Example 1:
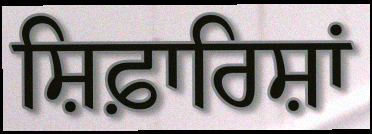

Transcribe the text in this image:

ਸ਼ਿਫ਼ਾਰਿਸ਼ਾਂ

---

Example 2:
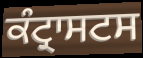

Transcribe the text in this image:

ਕੰਟ੍ਰਾਸਟਸ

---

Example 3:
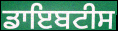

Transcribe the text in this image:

ਡਾਇਬਟੀਸ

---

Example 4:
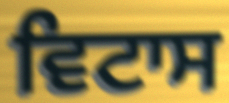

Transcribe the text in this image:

ਵਿਟਾਸ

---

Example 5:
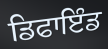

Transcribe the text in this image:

ਡਿਫਾਇੰਡ